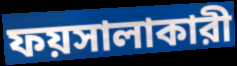
ফয়সালাকারী